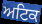
ਅਟਿਕ